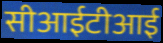
सीआईटीआई